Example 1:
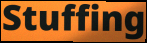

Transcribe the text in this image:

Stuffing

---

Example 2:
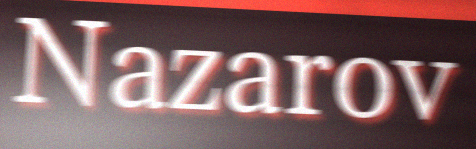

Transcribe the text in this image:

Nazarov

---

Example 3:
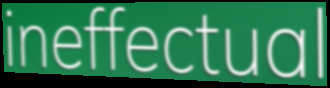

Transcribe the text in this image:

ineffectual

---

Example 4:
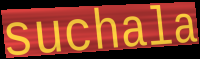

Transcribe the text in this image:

suchala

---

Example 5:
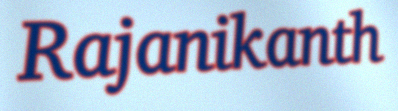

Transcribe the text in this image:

Rajanikanth